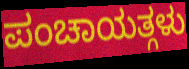
ಪಂಚಾಯತ್ಗಳು